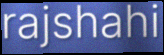
rajshahi